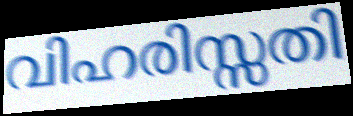
വിഹരിസ്സതി